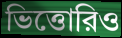
ভিত্তোরিও